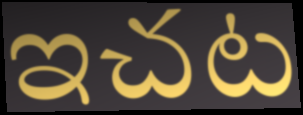
ఇచట